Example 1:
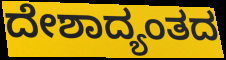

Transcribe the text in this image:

ದೇಶಾದ್ಯಂತದ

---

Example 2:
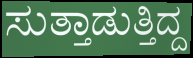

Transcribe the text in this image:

ಸುತ್ತಾಡುತ್ತಿದ್ದ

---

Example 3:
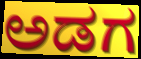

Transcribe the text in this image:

ಅಡಗ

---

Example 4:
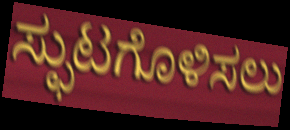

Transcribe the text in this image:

ಸ್ಫುಟಗೊಳಿಸಲು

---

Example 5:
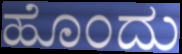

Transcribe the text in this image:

ಹೊಂದು